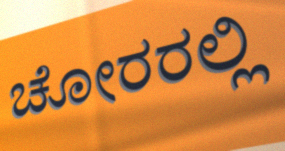
ಚೋರರಲ್ಲಿ